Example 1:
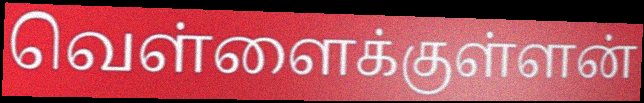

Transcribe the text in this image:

வெள்ளைக்குள்ளன்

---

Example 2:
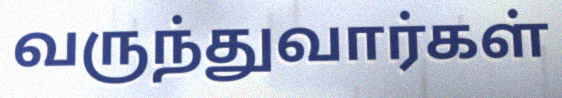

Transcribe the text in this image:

வருந்துவார்கள்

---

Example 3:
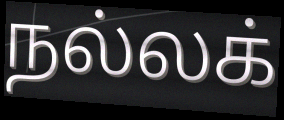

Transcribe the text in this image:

நல்லக்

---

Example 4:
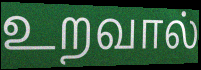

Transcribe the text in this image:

உறவால்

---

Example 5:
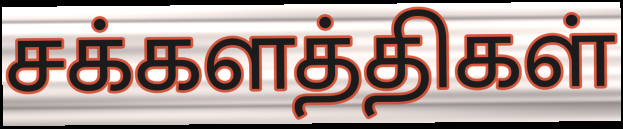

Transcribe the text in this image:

சக்களத்திகள்